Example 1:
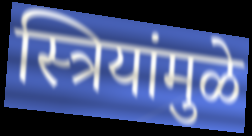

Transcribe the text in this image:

स्त्रियांमुळे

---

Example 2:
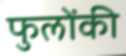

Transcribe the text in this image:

फुलोंकी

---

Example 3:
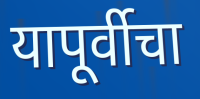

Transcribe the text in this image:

यापूर्वीचा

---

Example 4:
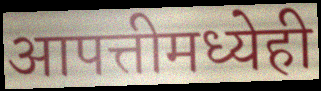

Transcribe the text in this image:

आपत्तीमध्येही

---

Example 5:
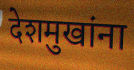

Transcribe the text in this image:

देशमुखांना